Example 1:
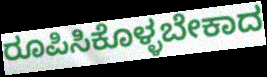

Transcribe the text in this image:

ರೂಪಿಸಿಕೊಳ್ಳಬೇಕಾದ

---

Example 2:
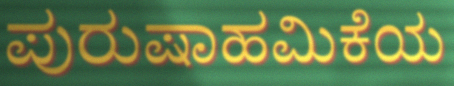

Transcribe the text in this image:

ಪುರುಷಾಹಮಿಕೆಯ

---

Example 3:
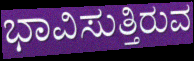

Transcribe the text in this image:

ಭಾವಿಸುತ್ತಿರುವ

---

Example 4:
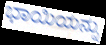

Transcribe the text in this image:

ಭಾಯಿಯನ್ನು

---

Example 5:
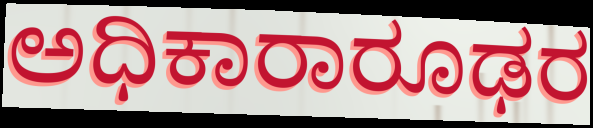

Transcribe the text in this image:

ಅಧಿಕಾರಾರೂಢರ